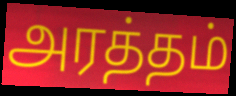
அரத்தம்